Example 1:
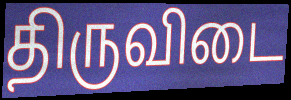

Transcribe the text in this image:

திருவிடை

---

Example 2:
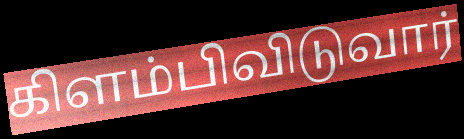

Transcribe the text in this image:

கிளம்பிவிடுவார்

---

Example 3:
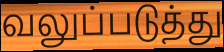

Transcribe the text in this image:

வலுப்படுத்து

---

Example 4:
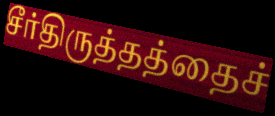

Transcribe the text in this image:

சீர்திருத்தத்தைச்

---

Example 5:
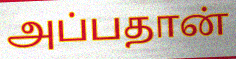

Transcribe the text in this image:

அப்பதான்